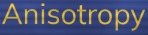
Anisotropy